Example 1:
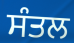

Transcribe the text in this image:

ਸੰਤਲ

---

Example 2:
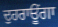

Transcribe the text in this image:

ਦੁਹਰਾਊਂਗਾ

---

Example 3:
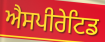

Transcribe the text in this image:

ਐਸਪੀਰੇਟਿਡ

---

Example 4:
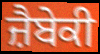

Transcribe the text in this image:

ਜ਼ੈਬੇਕੀ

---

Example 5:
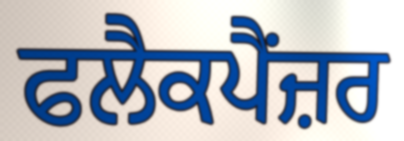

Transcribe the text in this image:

ਫਲੈਕਪੈਂਜ਼ਰ